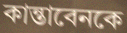
কান্তাবেনকে